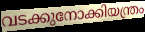
വടക്കുനോക്കിയന്ത്രം